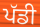
ਪੱਡੀ